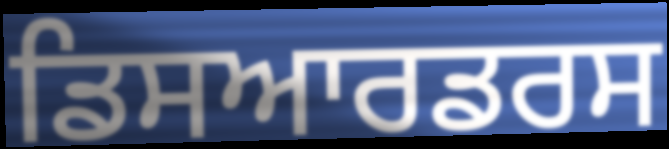
ਡਿਸਆਰਡਰਸ